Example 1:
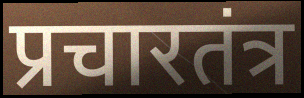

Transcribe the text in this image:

प्रचारतंत्र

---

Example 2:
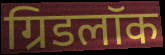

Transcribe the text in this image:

ग्रिडलॉक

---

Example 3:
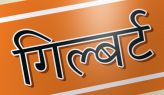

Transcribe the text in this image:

गिल्बर्ट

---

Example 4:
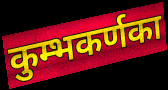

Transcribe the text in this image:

कुम्भकर्णका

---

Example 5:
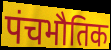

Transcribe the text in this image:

पंचभौतिक